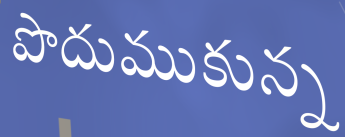
పొదుముకున్న